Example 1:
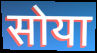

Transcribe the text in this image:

सोया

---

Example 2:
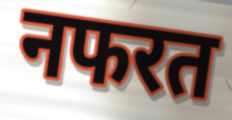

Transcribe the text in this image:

नफरत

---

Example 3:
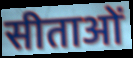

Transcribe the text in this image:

सीताओं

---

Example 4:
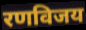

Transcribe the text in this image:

रणविजय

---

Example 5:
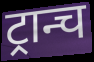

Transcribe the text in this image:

ट्रान्च